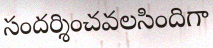
సందర్శించవలసిందిగా